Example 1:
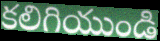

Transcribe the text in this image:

కలిగియుండి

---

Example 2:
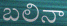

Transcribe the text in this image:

బలినా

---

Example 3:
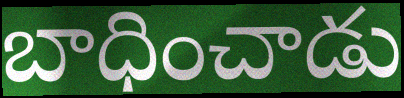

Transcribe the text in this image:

బాధించాడు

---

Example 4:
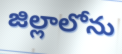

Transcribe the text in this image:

జిల్లాలోను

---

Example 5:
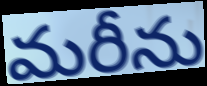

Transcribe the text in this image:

మరీను